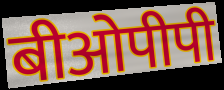
बीओपीपी